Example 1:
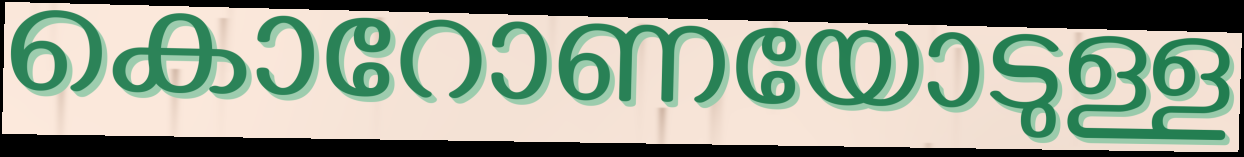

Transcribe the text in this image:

കൊറോണയോടുള്ള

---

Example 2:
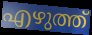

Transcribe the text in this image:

എഴുത്ത്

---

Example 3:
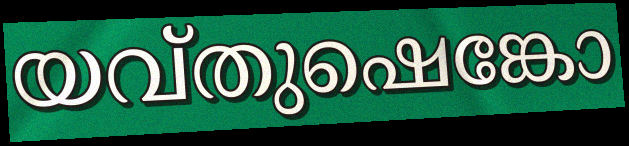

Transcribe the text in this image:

യവ്തുഷെങ്കോ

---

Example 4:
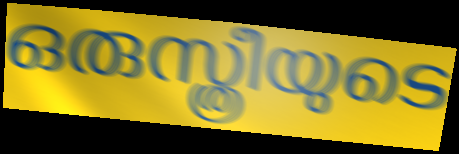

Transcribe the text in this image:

ഒരുസ്ത്രീയുടെ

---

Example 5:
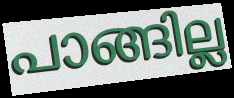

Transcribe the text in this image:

പാങ്ങില്ല